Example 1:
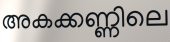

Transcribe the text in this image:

അകക്കണ്ണിലെ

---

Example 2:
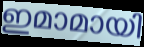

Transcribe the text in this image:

ഇമാമായി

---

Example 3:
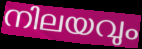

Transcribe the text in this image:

നിലയവും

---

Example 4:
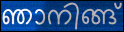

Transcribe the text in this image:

ഞാനിങ്ങ്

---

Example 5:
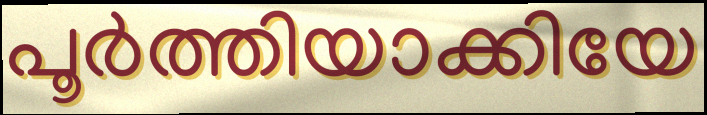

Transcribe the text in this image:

പൂർത്തിയാക്കിയേ